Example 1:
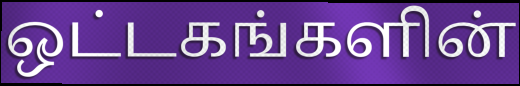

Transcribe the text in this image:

ஒட்டகங்களின்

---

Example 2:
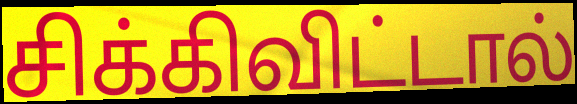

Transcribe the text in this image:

சிக்கிவிட்டால்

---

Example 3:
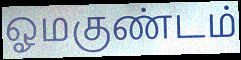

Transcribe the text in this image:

ஓமகுண்டம்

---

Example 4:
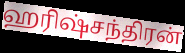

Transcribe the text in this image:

ஹரிஷ்சந்திரன்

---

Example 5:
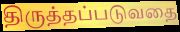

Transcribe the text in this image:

திருத்தப்படுவதை